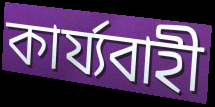
কাৰ্য্যবাহী